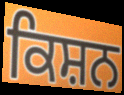
ਕਿਸ਼ਨ